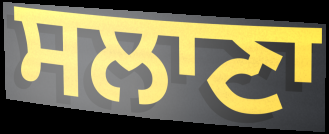
ਸਲਾਣਾ